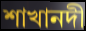
শাখানদী